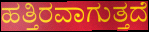
ಹತ್ತಿರವಾಗುತ್ತದೆ